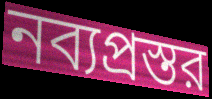
নব্যপ্রস্তর